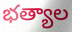
భత్యాల